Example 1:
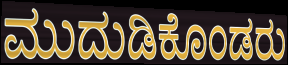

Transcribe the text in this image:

ಮುದುಡಿಕೊಂಡರು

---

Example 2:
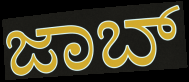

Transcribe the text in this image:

ಜಾಬ್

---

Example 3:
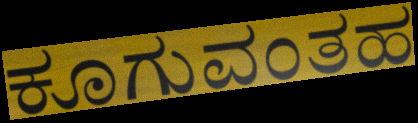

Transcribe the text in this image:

ಕೂಗುವಂತಹ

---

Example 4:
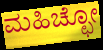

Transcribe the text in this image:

ಮಹಿಚ್ಛೋ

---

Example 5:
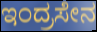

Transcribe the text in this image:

ಇಂದ್ರಸೇನ